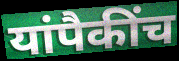
यांपैकींच